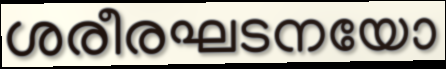
ശരീരഘടനയോ